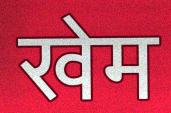
खेम